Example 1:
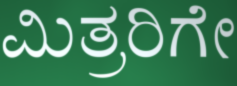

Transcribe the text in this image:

ಮಿತ್ರರಿಗೇ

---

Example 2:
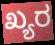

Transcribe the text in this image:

ಖ್ಯರ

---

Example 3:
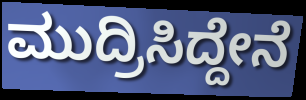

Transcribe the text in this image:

ಮುದ್ರಿಸಿದ್ದೇನೆ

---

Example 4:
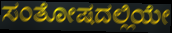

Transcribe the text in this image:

ಸಂತೋಷದಲ್ಲಿಯೇ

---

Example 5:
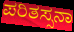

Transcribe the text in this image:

ಪರಿತಸ್ಸನಾ